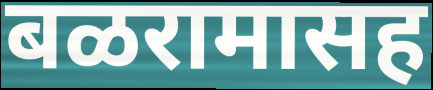
बळरामासह